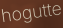
hogutte